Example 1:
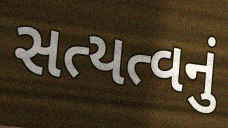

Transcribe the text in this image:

સત્યત્વનું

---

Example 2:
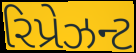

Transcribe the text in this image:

રિપ્રેઝન્ટ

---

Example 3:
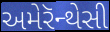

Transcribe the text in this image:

અમેરૅન્થેસી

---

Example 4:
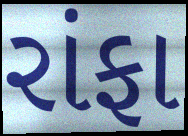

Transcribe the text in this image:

રાંફા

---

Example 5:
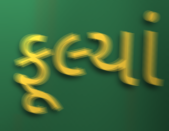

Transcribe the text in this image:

ફૂલ્યાં